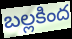
బల్లకింద